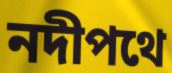
নদীপথে